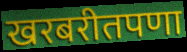
खरबरीतपणा